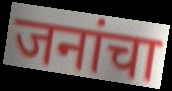
जनांचा